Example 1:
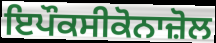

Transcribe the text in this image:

ਇਪੌਕਸੀਕੋਨਾਜ਼ੋਲ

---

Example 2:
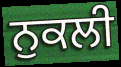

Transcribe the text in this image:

ਨੁਕਲੀ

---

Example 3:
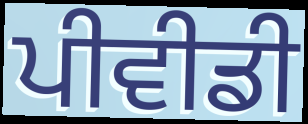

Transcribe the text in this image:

ਪੀਵੀਡੀ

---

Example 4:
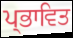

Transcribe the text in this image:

ਪ੍ਭਾਵਿਤ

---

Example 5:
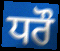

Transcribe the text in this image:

ਧਰੌ